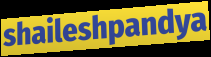
shaileshpandya